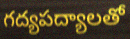
గద్యపద్యాలతో